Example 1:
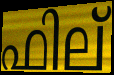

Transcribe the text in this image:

ഫില്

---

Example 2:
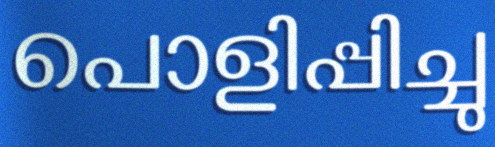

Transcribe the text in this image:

പൊളിപ്പിച്ചു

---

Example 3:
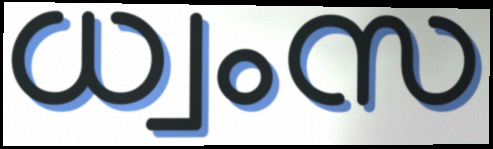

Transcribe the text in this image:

ധ്വംസ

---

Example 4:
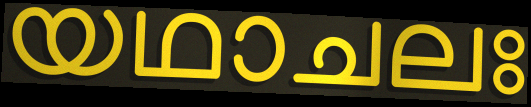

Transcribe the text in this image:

യഥാചലഃ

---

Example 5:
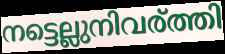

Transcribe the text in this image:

നട്ടെല്ലുനിവര്ത്തി